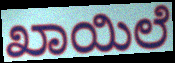
ಖಾಯಿಲೆ